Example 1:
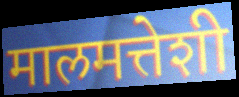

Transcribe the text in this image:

मालमत्तेशी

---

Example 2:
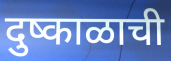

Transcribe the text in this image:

दुष्काळाची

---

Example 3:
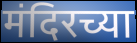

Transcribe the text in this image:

मंदिरच्या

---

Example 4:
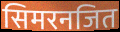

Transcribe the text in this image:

सिमरनजित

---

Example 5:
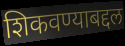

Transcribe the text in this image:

शिकवण्याबद्दल